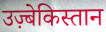
उज़्बेकिस्तान